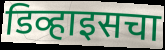
डिव्हाइसचा